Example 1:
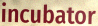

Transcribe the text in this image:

incubator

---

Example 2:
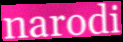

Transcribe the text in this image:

narodi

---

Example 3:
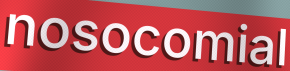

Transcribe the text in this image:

nosocomial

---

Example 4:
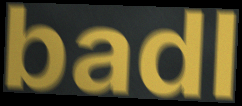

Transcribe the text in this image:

badl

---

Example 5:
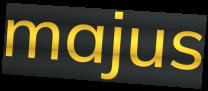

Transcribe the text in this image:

majus